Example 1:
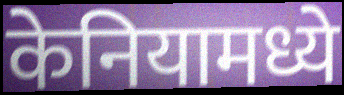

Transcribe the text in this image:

केनियामध्ये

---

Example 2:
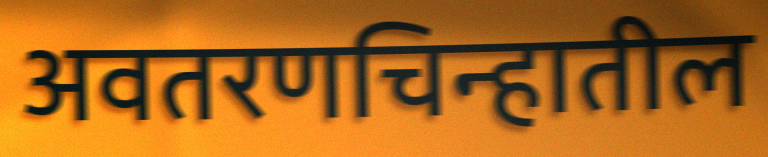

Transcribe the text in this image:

अवतरणचिन्हातील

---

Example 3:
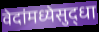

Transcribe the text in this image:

वेदांमध्येसुद्धा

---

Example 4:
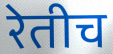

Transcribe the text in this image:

रेतीच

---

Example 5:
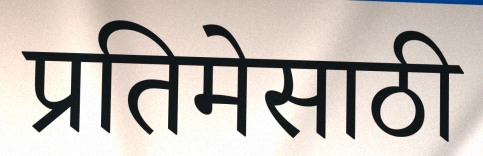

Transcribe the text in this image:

प्रतिमेसाठी